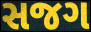
સજગ